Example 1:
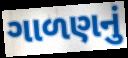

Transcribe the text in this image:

ગાળણનું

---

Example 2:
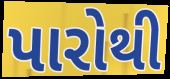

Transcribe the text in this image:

પારોથી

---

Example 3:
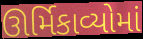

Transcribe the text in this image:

ઊર્મિકાવ્યોમાં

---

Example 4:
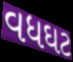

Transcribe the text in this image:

વધઘટ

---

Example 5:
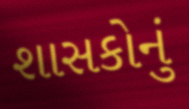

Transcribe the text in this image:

શાસકોનું